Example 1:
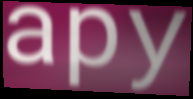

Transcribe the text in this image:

apy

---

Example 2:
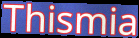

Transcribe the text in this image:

Thismia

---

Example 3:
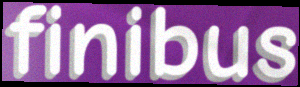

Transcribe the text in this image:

finibus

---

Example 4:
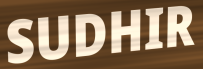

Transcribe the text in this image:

SUDHIR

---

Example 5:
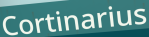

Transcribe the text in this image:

Cortinarius